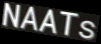
NAATs